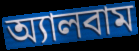
অ্যালবাম